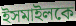
ইসমাইলকে